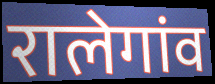
रालेगांव